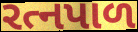
રત્નપાળ